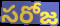
సరోజ